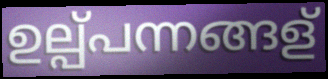
ഉല്പ്പന്നങ്ങള്